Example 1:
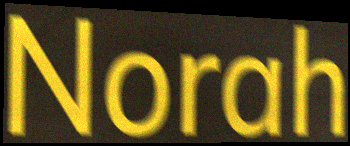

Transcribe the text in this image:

Norah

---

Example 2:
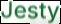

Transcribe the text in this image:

Jesty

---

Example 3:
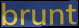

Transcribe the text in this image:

brunt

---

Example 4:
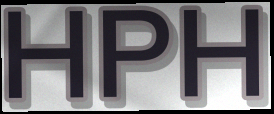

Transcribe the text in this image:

HPH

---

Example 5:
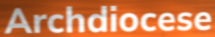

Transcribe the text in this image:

Archdiocese